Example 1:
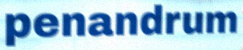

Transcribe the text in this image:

penandrum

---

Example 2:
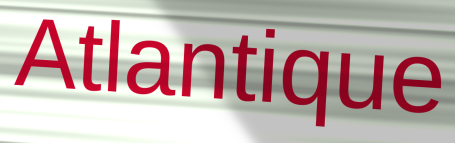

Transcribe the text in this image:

Atlantique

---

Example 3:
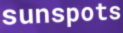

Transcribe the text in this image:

sunspots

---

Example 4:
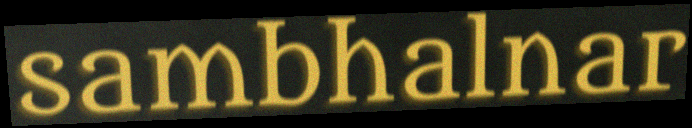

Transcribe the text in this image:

sambhalnar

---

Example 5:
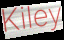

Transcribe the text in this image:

Kiley